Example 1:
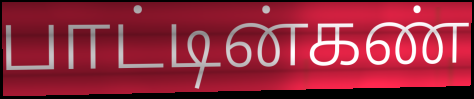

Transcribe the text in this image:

பாட்டின்கண்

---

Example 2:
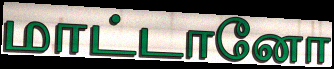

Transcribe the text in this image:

மாட்டானோ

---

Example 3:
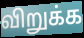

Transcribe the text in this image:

விறுக்க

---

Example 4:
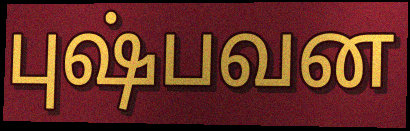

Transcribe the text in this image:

புஷ்பவன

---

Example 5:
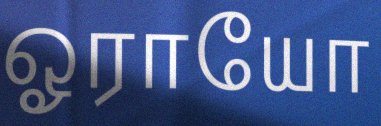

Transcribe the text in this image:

ஓராயோ